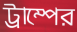
ট্রাম্পের